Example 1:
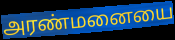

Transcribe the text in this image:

அரண்மனையை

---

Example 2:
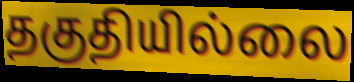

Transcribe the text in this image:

தகுதியில்லை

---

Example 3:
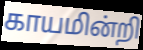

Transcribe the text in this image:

காயமின்றி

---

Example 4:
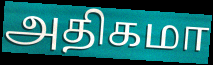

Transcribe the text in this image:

அதிகமா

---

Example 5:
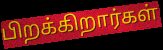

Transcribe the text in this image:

பிறக்கிறார்கள்